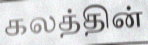
கலத்தின்